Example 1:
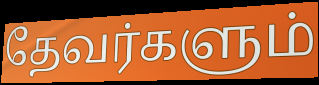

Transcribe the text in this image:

தேவர்களும்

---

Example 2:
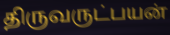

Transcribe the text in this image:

திருவருட்பயன்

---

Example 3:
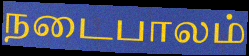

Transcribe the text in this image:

நடைபாலம்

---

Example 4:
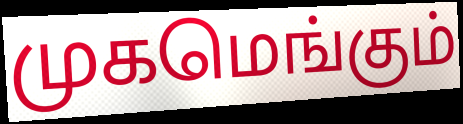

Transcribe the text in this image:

முகமெங்கும்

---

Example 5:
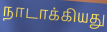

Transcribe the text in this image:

நாடாக்கியது